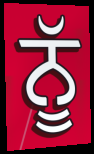
ਨੂੱ